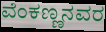
ವೆಂಕಣ್ಣನವರ